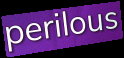
perilous